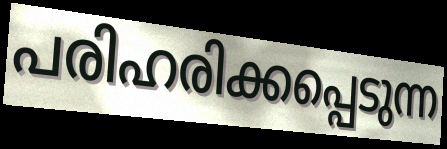
പരിഹരിക്കപ്പെടുന്ന